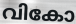
വികോ